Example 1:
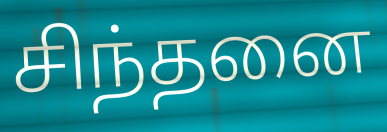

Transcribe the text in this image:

சிந்தனை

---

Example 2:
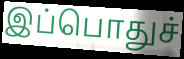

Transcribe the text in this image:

இப்பொதுச்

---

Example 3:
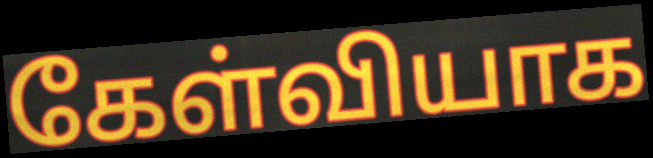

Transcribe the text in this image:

கேள்வியாக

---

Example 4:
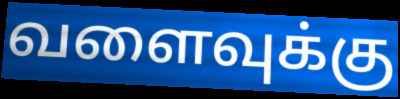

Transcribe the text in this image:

வளைவுக்கு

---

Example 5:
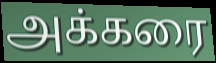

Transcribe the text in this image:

அக்கரை